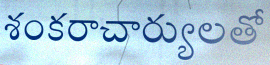
శంకరాచార్యులతో